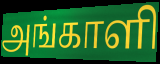
அங்காளி